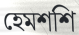
হেমশশি